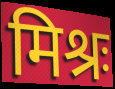
मिश्रः